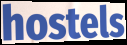
hostels